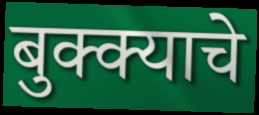
बुक्क्याचे